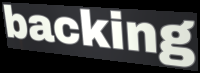
backing